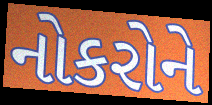
નોકરોને